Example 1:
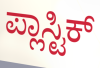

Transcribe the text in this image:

ಪ್ಲಾಸ್ಟಿಕ್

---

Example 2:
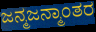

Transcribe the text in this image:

ಜನ್ಮಜನ್ಮಾಂತರ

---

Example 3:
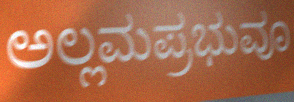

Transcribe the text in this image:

ಅಲ್ಲಮಪ್ರಭುವೂ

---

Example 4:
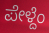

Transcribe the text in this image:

ಪೇಳ್ದೆಂ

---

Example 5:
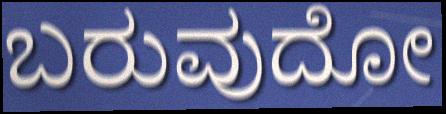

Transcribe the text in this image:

ಬರುವುದೋ